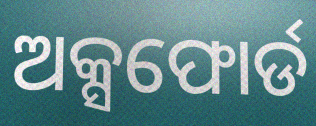
ଅକ୍ସଫୋର୍ଡ